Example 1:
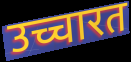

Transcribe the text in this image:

उच्चारत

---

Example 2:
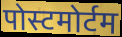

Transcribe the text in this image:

पोस्टमोर्टम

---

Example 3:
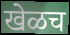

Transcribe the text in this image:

खेळच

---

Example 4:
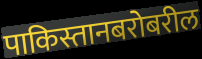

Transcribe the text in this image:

पाकिस्तानबरोबरील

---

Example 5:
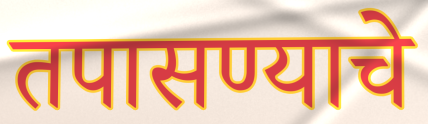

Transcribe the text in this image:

तपासण्याचे